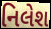
નિલેશ